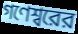
গণেশ্বরের